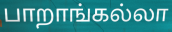
பாறாங்கல்லா